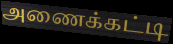
அணைக்கட்டி